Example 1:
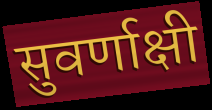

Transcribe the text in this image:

सुवर्णाक्षी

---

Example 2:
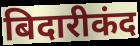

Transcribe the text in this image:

बिदारीकंद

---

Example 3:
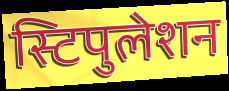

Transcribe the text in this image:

स्टिपुलेशन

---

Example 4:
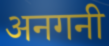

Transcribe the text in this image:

अनगनी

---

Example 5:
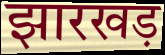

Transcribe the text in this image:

झारखड़